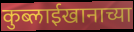
कुब्लाईखानाच्या